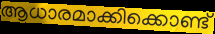
ആധാരമാക്കിക്കൊണ്ട്